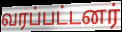
வரப்பட்டனர்